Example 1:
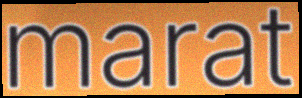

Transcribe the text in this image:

marat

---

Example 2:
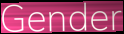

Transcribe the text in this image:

Gender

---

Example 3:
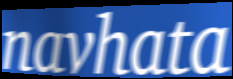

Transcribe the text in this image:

navhata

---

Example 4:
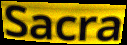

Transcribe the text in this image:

Sacra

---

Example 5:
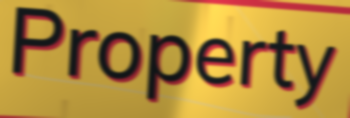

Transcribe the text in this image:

Property